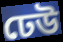
ঢেউ